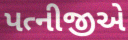
પત્નીજીએ